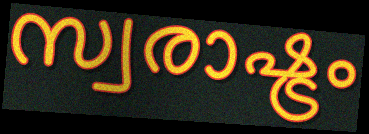
സ്വരാഷ്ട്രം